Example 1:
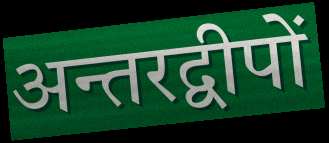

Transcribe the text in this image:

अन्तरद्वीपों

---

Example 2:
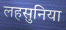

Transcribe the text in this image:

लहसुनिया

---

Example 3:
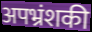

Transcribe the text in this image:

अपभ्रंशकी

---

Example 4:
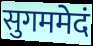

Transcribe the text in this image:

सुगममेदं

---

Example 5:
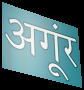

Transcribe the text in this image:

अगूंर